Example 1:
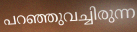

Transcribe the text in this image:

പറഞ്ഞുവച്ചിരുന്ന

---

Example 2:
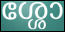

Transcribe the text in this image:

ശ്ശോ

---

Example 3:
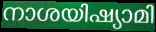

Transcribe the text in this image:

നാശയിഷ്യാമി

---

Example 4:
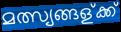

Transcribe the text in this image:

മത്സ്യങ്ങള്ക്ക്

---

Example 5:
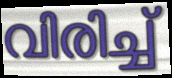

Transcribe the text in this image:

വിരിച്ച്